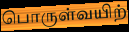
பொருள்வயிற்